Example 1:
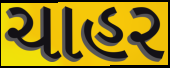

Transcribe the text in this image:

ચાહર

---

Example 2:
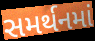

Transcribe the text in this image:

સમર્થનમાં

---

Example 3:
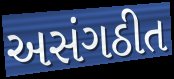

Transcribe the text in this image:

અસંગઠીત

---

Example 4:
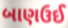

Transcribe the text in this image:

બાણઉઈ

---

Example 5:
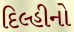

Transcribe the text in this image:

દિલ્હીનો